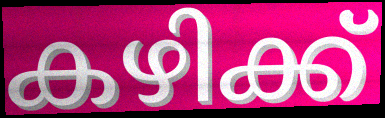
കഴിക്ക്